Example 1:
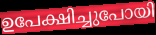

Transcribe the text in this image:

ഉപേക്ഷിച്ചുപോയി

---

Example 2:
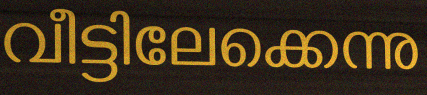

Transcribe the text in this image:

വീട്ടിലേക്കെന്നു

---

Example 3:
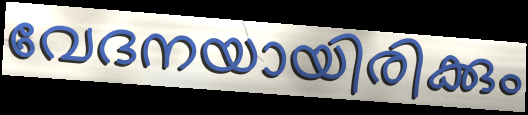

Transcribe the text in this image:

വേദനയായിരിക്കും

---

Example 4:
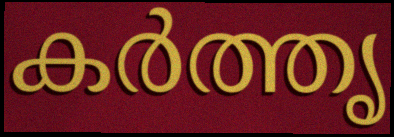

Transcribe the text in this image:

കർത്തൃ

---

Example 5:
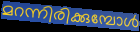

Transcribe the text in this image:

മറന്നിരിക്കുമ്പോൾ